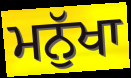
ਮਨੁੱਖਾ